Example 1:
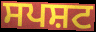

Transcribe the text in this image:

ਸਪਸ਼ਟ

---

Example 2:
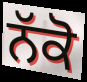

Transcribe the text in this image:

ਨੱਕੋ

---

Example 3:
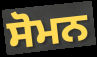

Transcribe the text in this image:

ਸੋਮਨ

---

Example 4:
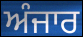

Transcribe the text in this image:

ਅੰਜਾਰ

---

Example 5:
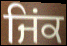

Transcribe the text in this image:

ਜਿਂਕ